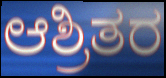
ಆಶ್ರಿತರ